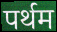
पर्थम